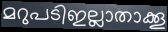
മറുപടിഇല്ലാതാക്കൂ